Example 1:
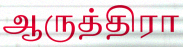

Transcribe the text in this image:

ஆருத்திரா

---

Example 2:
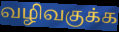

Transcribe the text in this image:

வழிவகுக்க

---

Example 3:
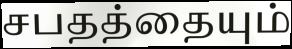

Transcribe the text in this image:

சபதத்தையும்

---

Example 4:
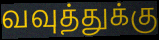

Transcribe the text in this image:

வவுத்துக்கு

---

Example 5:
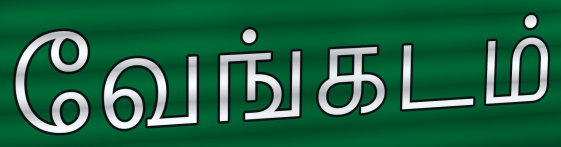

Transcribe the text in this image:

வேங்கடம்